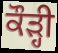
ਕੌੜ੍ਹੀ